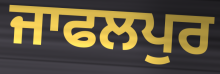
ਜਾਫਲਪੁਰ